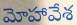
మోహావేశ